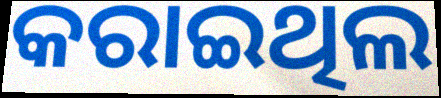
କରାଇଥିଲ